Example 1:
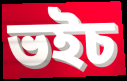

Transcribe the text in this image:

ভইচ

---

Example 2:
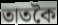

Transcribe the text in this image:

তাতকৈ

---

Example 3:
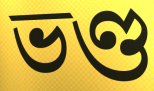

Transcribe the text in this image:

ভণ্ড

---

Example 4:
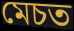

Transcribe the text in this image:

মেচত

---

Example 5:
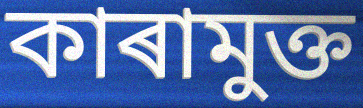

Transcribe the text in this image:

কাৰামুক্ত